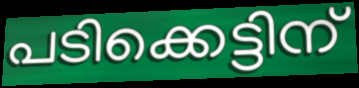
പടിക്കെട്ടിന്